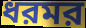
ধরমর